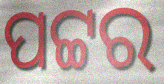
ପଟ୍ଟର